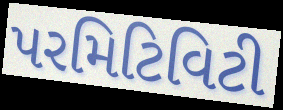
પરમિટિવિટી